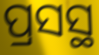
ପ୍ରସସ୍ଥ